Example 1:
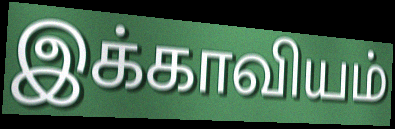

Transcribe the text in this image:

இக்காவியம்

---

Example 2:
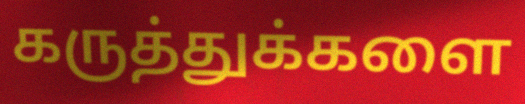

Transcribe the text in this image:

கருத்துக்களை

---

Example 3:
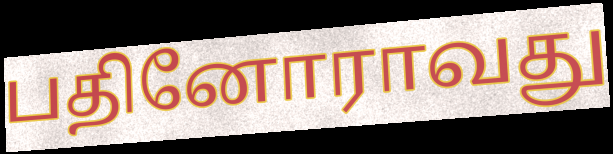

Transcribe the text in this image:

பதினோராவது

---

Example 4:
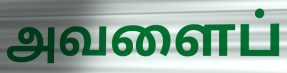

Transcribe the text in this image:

அவளைப்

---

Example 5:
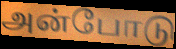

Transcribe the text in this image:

அன்போடு